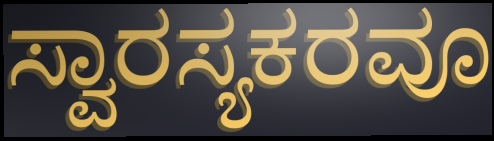
ಸ್ವಾರಸ್ಯಕರವೂ